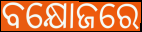
ବକ୍ଷୋଜରେ